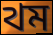
থম